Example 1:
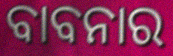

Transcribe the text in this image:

ବାବନାର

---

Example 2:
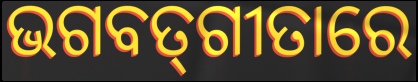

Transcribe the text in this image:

ଭଗବତ୍‌ଗୀତାରେ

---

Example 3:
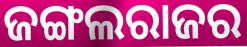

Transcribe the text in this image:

ଜଙ୍ଗଲରାଜର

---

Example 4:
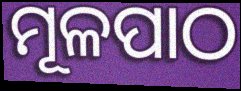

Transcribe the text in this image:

ମୂଳପାଠ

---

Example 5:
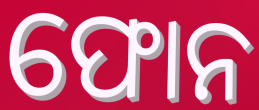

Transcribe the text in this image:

ଫୋନ